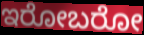
ಇರೋಬರೋ